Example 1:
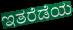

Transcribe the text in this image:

ಇತರೆಡೆಯ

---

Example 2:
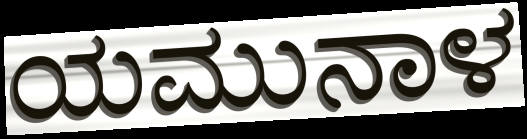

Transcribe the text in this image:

ಯಮುನಾಳ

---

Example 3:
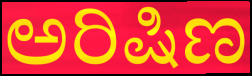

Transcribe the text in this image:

ಅರಿಷಿಣ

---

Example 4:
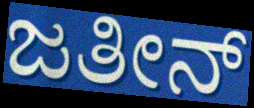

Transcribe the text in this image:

ಜತೀನ್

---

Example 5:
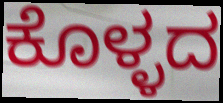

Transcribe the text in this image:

ಕೊಳ್ಳದ